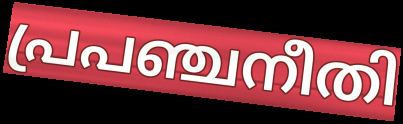
പ്രപഞ്ചനീതി